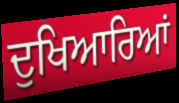
ਦੁਖਿਆਰਿਆਂ